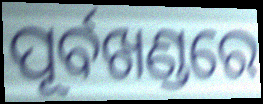
ପୂର୍ବଖଣ୍ଡରେ